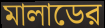
মালাডের